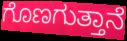
ಗೊಣಗುತ್ತಾನೆ